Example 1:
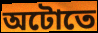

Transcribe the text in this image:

অটোতে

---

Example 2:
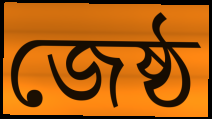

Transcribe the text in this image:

জেষ্ঠ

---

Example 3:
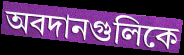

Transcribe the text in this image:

অবদানগুলিকে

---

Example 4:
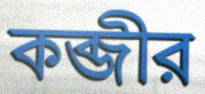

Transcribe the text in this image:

কব্জীর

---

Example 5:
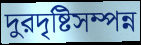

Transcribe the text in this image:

দুরদৃষ্টিসম্পন্ন